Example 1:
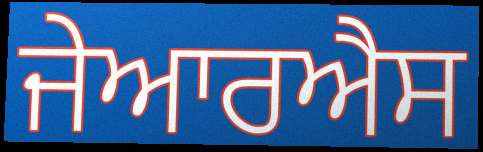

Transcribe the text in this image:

ਜੇਆਰਐਸ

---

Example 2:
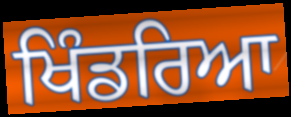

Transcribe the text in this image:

ਖਿੰਡਰਿਆ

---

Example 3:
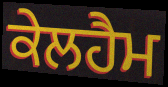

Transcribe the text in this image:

ਕੇਲਹੈਮ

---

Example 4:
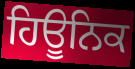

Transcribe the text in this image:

ਹਿਊਨਿਕ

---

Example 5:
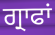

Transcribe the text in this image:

ਗ੍ਰਾਫਾਂ